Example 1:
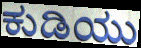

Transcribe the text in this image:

ಕುಡಿಯು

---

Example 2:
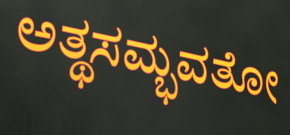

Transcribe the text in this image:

ಅತ್ಥಸಮ್ಭವತೋ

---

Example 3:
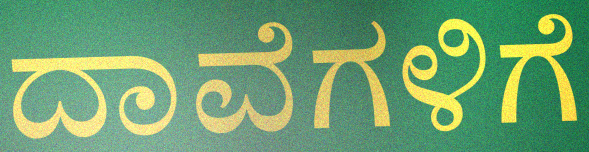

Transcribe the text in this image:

ದಾವೆಗಳಿಗೆ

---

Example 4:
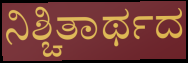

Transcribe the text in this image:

ನಿಶ್ಚಿತಾರ್ಥದ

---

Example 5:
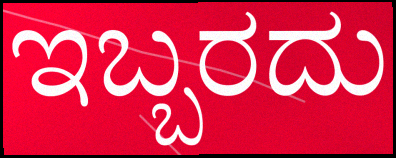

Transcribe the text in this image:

ಇಬ್ಬರದು